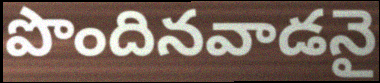
పొందినవాడనై